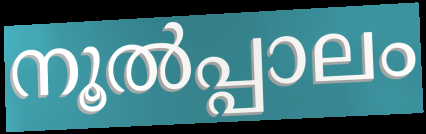
നൂൽപ്പാലം